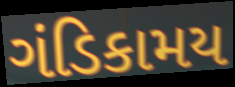
ગંડિકામય